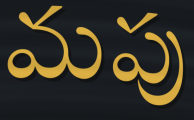
మపు